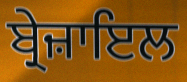
ਬ੍ਰੇਜ਼ਾਇਲ